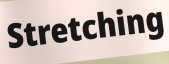
Stretching